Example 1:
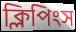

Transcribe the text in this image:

ক্লিপিংস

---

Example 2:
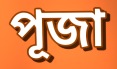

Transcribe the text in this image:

পূজা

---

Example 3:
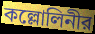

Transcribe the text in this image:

কল্লোলিনীর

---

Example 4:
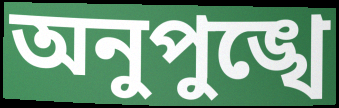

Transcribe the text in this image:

অনুপুঙ্খে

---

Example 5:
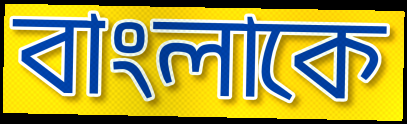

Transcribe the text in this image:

বাংলাকে